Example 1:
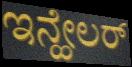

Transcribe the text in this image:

ಇನ್ಹೇಲರ್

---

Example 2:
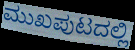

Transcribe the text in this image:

ಮುಖಪುಟದಲ್ಲಿ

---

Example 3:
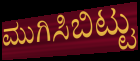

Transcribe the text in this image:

ಮುಗಿಸಿಬಿಟ್ಟು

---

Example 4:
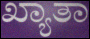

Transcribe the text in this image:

ಖ್ಯಾತಾ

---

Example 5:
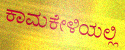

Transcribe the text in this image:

ಕಾಮಕೇಳಿಯಲ್ಲಿ